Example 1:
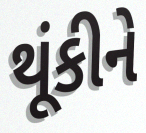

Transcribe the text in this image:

થૂંકીને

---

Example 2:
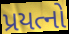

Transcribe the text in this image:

પ્રયત્નો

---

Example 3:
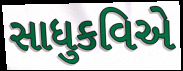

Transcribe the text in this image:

સાધુકવિએ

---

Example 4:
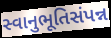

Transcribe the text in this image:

સ્વાનુભૂતિસંપન્ન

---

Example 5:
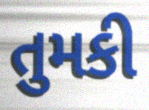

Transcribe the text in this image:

તુમકી